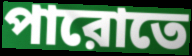
পারোতে